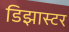
डिझास्टर